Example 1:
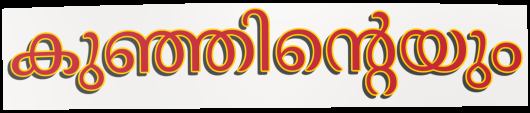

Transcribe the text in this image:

കുഞ്ഞിന്റെയും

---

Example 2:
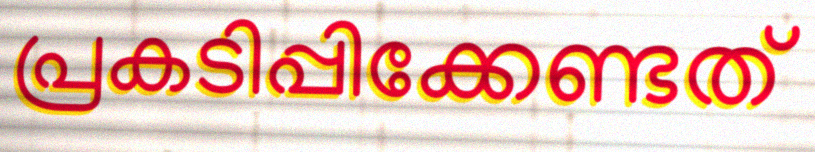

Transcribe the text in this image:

പ്രകടിപ്പിക്കേണ്ടത്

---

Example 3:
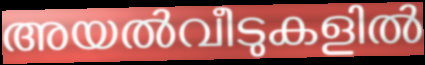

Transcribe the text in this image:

അയൽവീടുകളിൽ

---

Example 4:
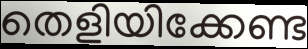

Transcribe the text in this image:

തെളിയിക്കേണ്ട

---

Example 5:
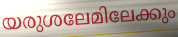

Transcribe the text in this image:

യരുശലേമിലേക്കും